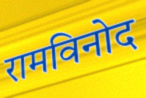
रामविनोद